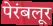
पेरंबलूर